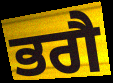
ਭਗੈ